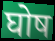
घोष